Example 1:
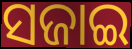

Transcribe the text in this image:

ସଜାଇ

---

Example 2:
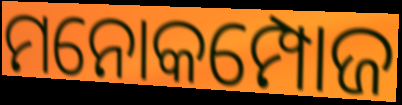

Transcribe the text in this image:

ମନୋକମ୍ପୋଜ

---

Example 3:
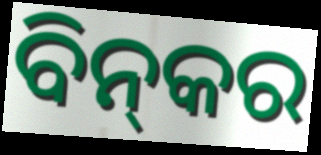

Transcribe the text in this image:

ବିନ୍‌କର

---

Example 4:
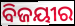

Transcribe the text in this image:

ବିଜୟୀର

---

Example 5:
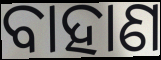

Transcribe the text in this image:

ବାହାଣ